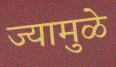
ज्यामुळे